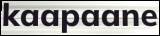
kaapaane